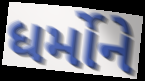
ધર્મોને